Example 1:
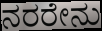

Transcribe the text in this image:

ನರರೇನು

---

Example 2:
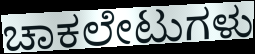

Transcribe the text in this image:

ಚಾಕಲೇಟುಗಳು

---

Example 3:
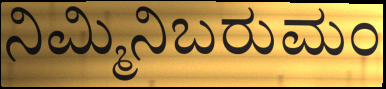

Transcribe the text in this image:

ನಿಮ್ಮಿನಿಬರುಮಂ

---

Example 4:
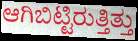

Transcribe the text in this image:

ಆಗಿಬಿಟ್ಟಿರುತ್ತಿತ್ತು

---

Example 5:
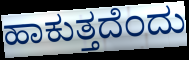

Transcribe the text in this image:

ಹಾಕುತ್ತದೆಂದು